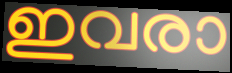
ഇവരാ